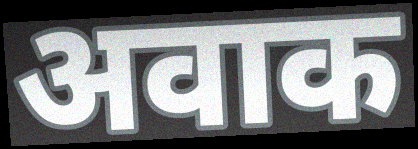
अवाक